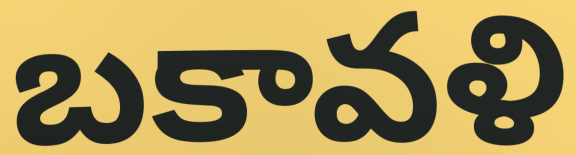
బకావళి